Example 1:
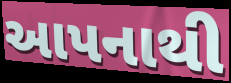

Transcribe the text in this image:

આપનાથી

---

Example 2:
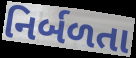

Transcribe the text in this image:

નિર્બળતા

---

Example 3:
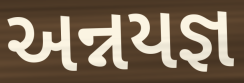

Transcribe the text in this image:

અન્નયજ્ઞ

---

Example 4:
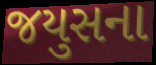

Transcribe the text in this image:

જયુસના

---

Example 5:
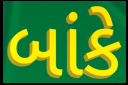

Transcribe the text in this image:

બાંકે